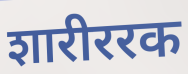
शारीररक